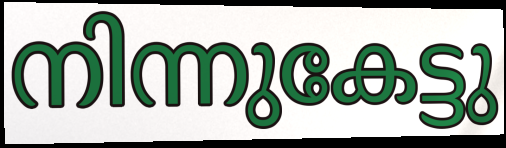
നിന്നുകേട്ടു